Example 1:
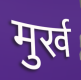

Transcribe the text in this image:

मुर्ख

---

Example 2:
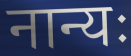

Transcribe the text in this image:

नान्यः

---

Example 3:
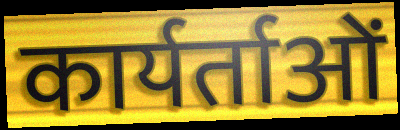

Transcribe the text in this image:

कार्यर्ताओं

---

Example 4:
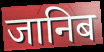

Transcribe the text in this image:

जानिब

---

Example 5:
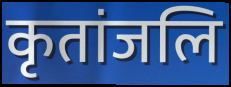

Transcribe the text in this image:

कृतांजलि